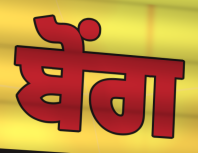
ਬੋਂਗ